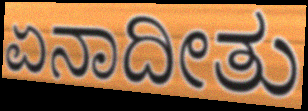
ಏನಾದೀತು